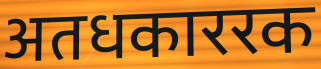
अतधकाररक